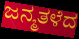
ಜನ್ಮತಳೆದ